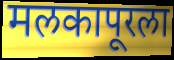
मलकापूरला